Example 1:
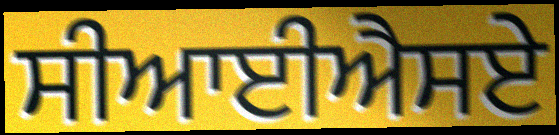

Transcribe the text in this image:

ਸੀਆਈਐਸਏ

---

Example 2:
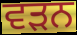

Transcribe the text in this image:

ਵਡ਼ਨ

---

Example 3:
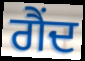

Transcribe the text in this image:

ਗੈਂਦ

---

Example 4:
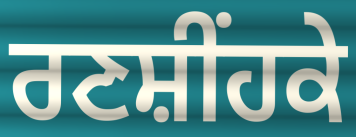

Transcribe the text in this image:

ਰਣਸ਼ੀਂਹਕੇ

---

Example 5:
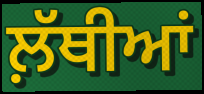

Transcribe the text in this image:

ਲ਼ੱਥੀਆਂ